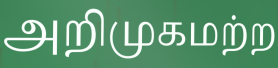
அறிமுகமற்ற